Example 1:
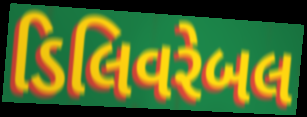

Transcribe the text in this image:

ડિલિવરેબલ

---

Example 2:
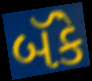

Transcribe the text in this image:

બૅંકે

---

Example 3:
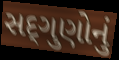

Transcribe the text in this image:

સદ્‌ગુણોનું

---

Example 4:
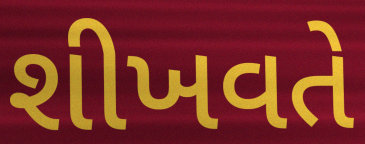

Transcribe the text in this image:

શીખવતે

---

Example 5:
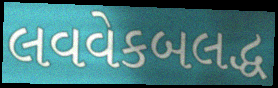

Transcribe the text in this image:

લવવેકબલદ્ધ